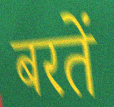
बरतें